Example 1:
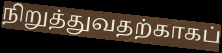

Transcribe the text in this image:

நிறுத்துவதற்காகப்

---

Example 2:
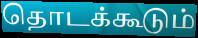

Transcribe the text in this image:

தொடக்கூடும்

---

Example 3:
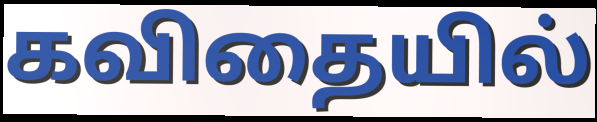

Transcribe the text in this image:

கவிதையில்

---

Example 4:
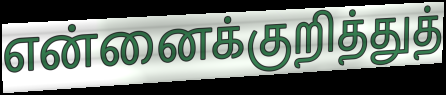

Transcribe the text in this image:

என்னைக்குறித்துத்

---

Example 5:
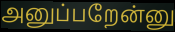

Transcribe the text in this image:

அனுப்பறேன்னு